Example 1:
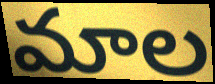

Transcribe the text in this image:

మాల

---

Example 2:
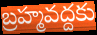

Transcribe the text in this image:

బ్రహ్మవద్దకు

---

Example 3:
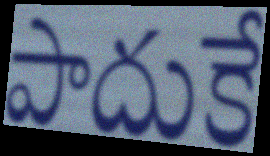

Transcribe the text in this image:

పాదుకే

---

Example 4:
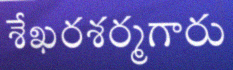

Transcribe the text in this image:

శేఖరశర్మగారు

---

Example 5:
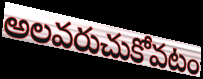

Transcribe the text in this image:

అలవరుచుకోవటం